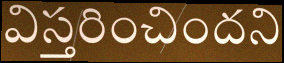
విస్తరించిందని